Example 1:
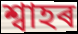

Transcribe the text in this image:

শ্বাহৰ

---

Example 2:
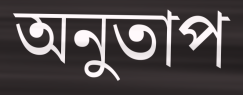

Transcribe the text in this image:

অনুতাপ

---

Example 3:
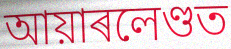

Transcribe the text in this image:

আয়াৰলেণ্ডত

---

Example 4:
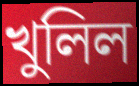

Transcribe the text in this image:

খুলিল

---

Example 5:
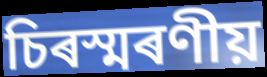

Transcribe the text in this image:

চিৰস্মৰণীয়